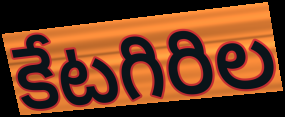
కేటగిరిల